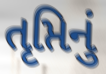
તૃપ્તિનું